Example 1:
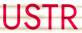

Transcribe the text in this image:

USTR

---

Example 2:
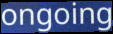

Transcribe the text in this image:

ongoing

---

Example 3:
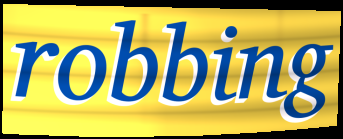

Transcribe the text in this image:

robbing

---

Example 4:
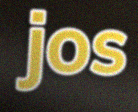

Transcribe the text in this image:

jos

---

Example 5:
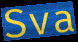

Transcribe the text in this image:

Sva